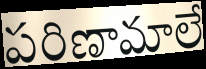
పరిణామాలే